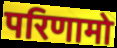
परिणामो